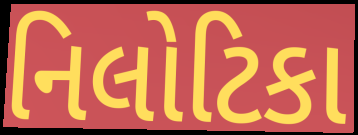
નિલોટિકા